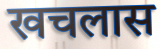
खचलास